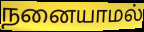
நனையாமல்